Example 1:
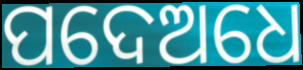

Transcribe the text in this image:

ପଦେଅଧେ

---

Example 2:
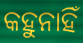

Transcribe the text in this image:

କହୁନାହିଁ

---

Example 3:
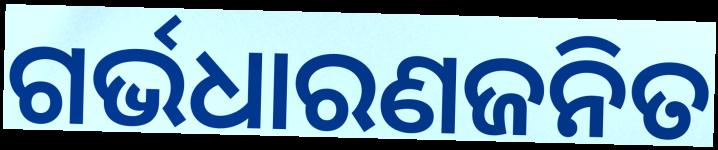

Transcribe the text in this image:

ଗର୍ଭଧାରଣଜନିତ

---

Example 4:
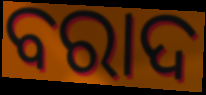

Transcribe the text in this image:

ବରାଦ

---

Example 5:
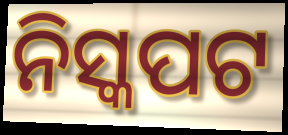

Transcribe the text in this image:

ନିସ୍କପଟ